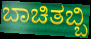
ಬಾಚಿತಬ್ಬಿ